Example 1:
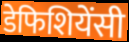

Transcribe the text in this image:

डेफिशियेंसी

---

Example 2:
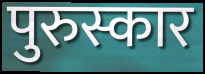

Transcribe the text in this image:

पुरुस्‍कार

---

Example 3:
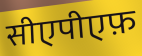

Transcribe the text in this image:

सीएपीएफ़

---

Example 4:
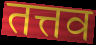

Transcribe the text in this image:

तत्तव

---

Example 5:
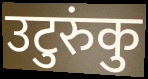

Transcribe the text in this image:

उटुरुंकु